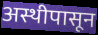
अस्थीपासून